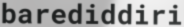
barediddiri